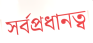
সর্বপ্রধানত্ব